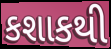
કશાકથી